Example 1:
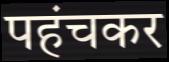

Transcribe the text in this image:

पहंचकर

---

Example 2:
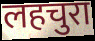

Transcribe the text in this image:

लहचुरा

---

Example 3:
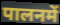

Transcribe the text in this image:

पालनमें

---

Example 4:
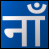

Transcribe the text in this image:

नाँ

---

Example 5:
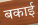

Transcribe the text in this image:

बकाई